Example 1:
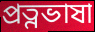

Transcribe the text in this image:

প্রত্নভাষা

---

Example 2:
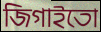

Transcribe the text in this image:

জিগাইতো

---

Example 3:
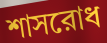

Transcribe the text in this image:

শাসরোধ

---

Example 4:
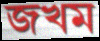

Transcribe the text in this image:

জখম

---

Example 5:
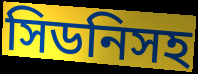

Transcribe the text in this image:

সিডনিসহ